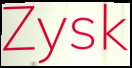
Zysk